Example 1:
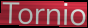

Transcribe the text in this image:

Tornio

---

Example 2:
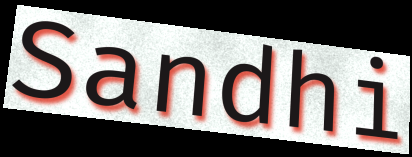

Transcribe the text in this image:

Sandhi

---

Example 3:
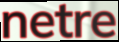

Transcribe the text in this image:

netre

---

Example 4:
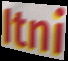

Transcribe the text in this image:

Itni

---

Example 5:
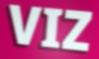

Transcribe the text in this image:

VIZ